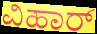
ವಿಹಾರ್